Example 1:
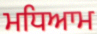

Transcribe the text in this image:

ਮਧਿਆਮ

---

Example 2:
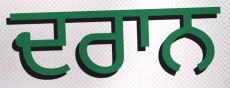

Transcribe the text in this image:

ਦਰਾਨ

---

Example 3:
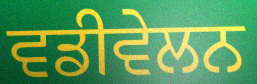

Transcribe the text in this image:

ਵਡੀਵੇਲਨ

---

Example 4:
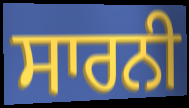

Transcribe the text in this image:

ਸਾਰਨੀ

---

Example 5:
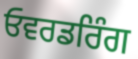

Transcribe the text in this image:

ਓਵਰਡਰਿੰਗ